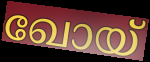
ഖോയ്